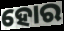
ହୋର